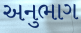
અનુભાગ